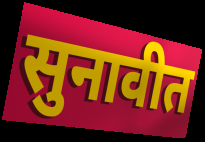
सुनावीत